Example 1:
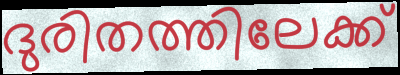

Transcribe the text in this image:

ദുരിതത്തിലേക്ക്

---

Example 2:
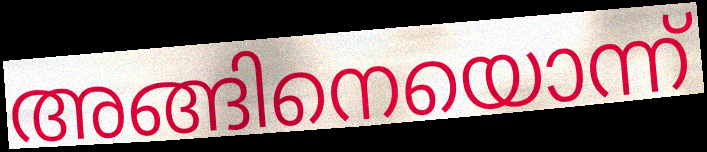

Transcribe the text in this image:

അങ്ങിനെയൊന്ന്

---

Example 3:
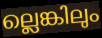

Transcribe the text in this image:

ല്ലെങ്കിലും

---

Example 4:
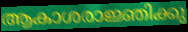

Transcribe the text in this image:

ആകാശരാജ്ഞിക്കു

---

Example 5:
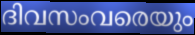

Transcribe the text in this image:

ദിവസംവരെയും